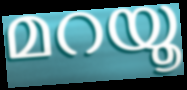
മറയൂ